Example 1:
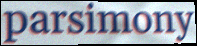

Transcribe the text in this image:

parsimony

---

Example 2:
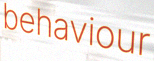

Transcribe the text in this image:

behaviour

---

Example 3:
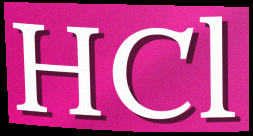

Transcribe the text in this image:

HCl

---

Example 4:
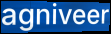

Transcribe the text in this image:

agniveer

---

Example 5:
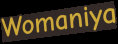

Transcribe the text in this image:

Womaniya